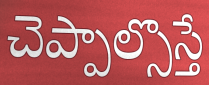
చెప్పాల్సొస్తే